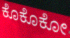
ಕೊಕೊಕೋ